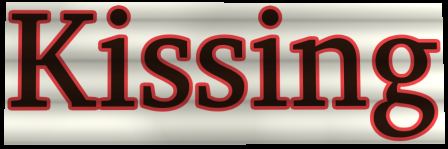
Kissing